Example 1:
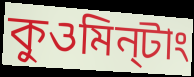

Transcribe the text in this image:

কুওমিন্‌টাং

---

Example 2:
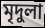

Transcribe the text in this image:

মৃদুলা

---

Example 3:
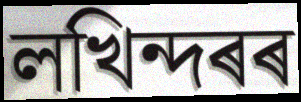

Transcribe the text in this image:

লখিন্দৰৰ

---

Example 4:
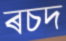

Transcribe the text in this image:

ৰচদ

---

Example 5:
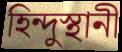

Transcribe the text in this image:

হিন্দুস্থানী